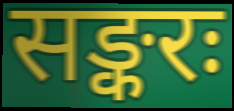
सङ्करः